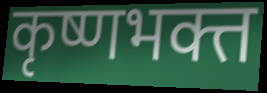
कृष्णभक्त